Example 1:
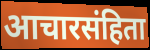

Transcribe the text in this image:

आचारसंहिता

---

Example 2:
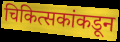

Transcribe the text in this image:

चिकित्सकांकडून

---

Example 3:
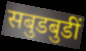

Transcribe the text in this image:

सबुडबुडीं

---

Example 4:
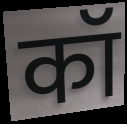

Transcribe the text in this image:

कॉ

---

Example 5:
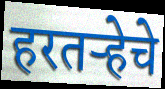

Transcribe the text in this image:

हरतऱ्हेचे